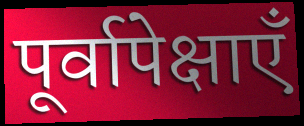
पूर्वापेक्षाएँ